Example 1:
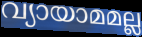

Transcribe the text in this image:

വ്യായാമമല്ല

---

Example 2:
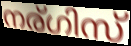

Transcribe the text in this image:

നര്ഗിസ്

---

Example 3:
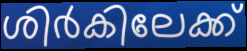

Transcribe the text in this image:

ശിർകിലേക്ക്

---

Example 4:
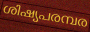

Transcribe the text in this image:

ശിഷ്യപരമ്പര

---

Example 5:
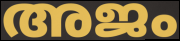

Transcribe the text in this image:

അജം